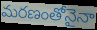
మరణంతోనైనా